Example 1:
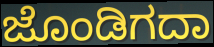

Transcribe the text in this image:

ಜೊಂಡಿಗದಾ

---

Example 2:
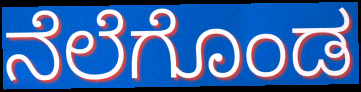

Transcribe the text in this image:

ನೆಲೆಗೊಂಡ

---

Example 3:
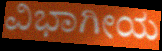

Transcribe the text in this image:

ವಿಭಾಗೀಯ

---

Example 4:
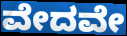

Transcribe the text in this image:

ವೇದವೇ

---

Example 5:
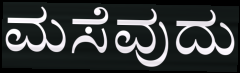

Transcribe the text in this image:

ಮಸೆವುದು